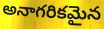
అనాగరికమైన